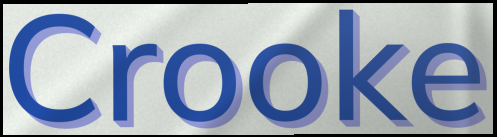
Crooke